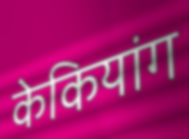
केकियांग